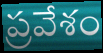
ప్రవేశం